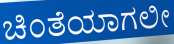
ಚಿಂತೆಯಾಗಲೀ